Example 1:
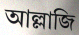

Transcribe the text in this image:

আল্লাজি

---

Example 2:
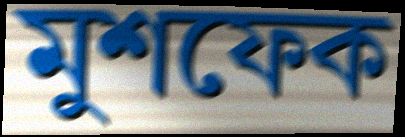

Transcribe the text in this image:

মুশফেক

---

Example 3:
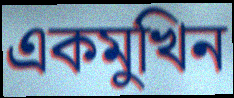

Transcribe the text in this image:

একমুখিন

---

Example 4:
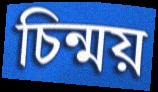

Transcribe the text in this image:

চিন্ময়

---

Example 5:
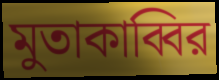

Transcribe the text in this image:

মুতাকাব্বির